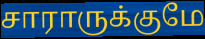
சாராருக்குமே